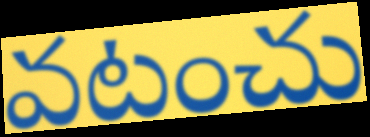
వటంచు